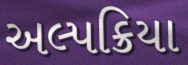
અલ્પક્રિયા